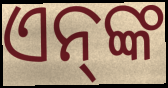
ଏନ୍‌ଙ୍କ